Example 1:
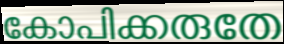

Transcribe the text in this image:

കോപിക്കരുതേ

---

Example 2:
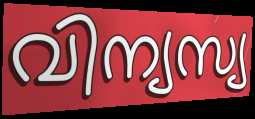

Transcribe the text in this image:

വിന്യസ്യ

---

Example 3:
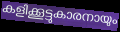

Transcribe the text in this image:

കളിക്കൂട്ടുകാരനായും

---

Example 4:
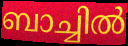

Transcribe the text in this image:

ബാച്ചിൽ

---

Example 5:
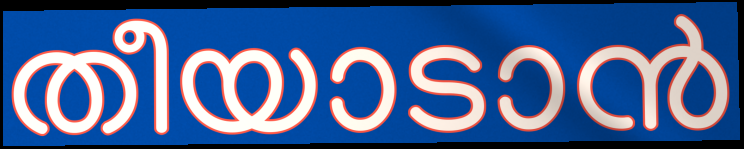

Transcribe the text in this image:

തീയാടാൻ